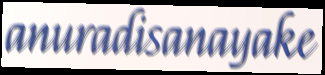
anuradisanayake